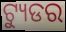
ଟ୍ୟୁଡର